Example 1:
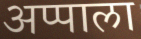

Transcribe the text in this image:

अप्पाला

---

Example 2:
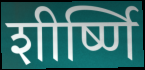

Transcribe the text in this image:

शीर्ष्णि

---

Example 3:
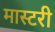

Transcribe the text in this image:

मास्टरी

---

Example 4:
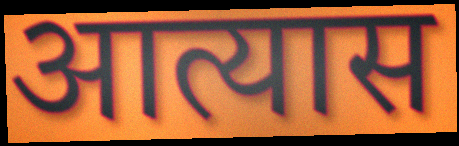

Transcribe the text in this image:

आत्यास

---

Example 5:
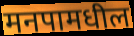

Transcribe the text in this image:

मनपामधील